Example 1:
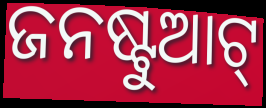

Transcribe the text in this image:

ଜନଷ୍ଟୁଆଟ୍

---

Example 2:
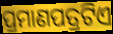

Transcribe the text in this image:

ପ୍ରମାଣପତ୍ରଟିଏ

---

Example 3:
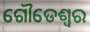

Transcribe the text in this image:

ଗୌଡେଶ୍ୱର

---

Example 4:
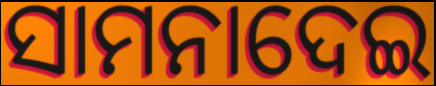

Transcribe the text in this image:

ସାମନାଦେଇ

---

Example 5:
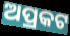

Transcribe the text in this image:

ଅପ୍ରକଟ